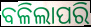
ବଳିଲାପରି